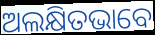
ଅଲକ୍ଷିତଭାବେ